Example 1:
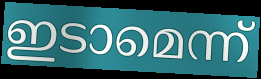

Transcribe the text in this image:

ഇടാമെന്ന്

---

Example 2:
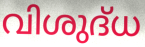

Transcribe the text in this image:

വിശുദ്‌ധ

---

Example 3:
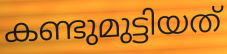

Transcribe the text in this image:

കണ്ടുമുട്ടിയത്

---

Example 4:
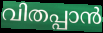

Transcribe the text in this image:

വിതപ്പാൻ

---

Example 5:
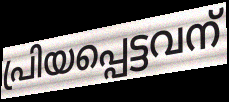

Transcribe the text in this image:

പ്രിയപ്പെട്ടവന്